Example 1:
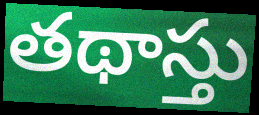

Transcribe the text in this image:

తథాస్తు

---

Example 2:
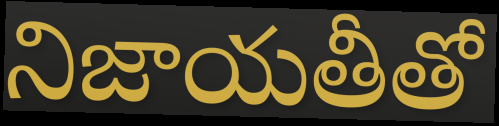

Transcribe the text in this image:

నిజాయతీతో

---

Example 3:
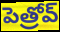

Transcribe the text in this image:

పెత్రోవ్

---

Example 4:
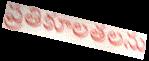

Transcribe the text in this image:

ప్రతికూలతలను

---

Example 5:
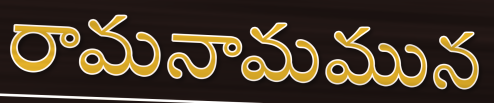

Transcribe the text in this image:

రామనామమున